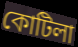
কোটিলা